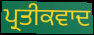
ਪ੍ਰਤੀਕਵਾਦ